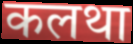
कलथा